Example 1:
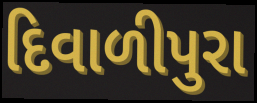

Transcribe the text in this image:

દિવાળીપુરા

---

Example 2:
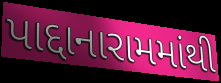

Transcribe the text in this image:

પાદ્દાનારામમાંથી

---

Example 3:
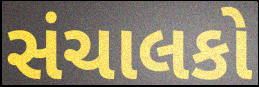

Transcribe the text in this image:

સંચાલકો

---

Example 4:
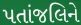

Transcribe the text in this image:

પતાંજલિને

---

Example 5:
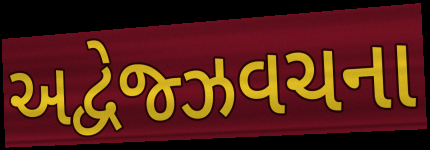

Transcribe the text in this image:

અદ્વેજ્ઝવચના